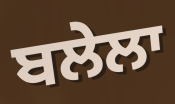
ਬਲੇਲਾ